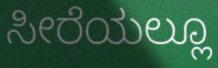
ಸೀರೆಯಲ್ಲೂ